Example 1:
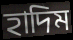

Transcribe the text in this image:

হাদিম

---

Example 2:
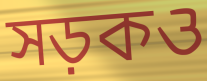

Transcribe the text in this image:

সড়কও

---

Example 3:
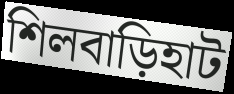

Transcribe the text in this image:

শিলবাড়িহাট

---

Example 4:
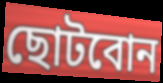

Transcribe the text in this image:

ছোটবোন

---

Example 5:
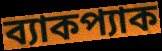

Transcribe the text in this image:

ব্যাকপ্যাক